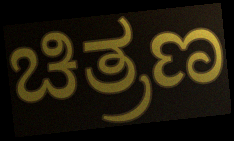
ಚಿತ್ರಣ